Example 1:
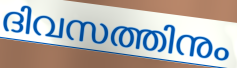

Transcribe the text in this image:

ദിവസത്തിനും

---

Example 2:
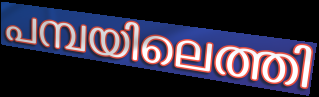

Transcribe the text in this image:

പമ്പയിലെത്തി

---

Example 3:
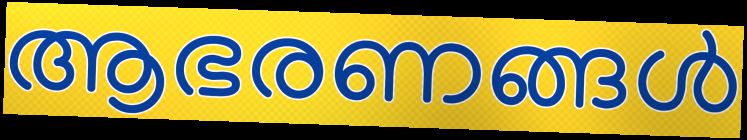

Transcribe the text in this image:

ആഭരണങ്ങൾ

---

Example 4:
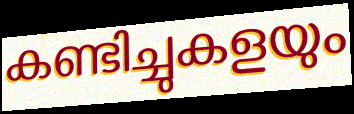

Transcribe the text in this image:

കണ്ടിച്ചുകളയും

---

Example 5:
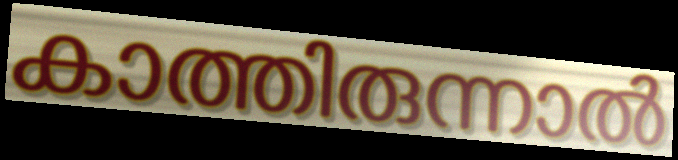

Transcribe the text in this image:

കാത്തിരുന്നാൽ